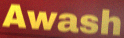
Awash